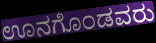
ಊನಗೊಂಡವರು